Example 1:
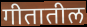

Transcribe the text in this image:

गीतातील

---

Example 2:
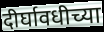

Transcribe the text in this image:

दीर्घावधीच्या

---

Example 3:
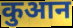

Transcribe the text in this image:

कुआन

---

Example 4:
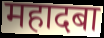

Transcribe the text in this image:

महादबा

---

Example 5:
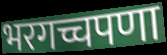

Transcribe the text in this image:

भरगच्चपणा